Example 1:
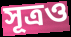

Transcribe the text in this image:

সূত্ৰও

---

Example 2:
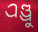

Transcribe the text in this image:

এণ্ড্ৰু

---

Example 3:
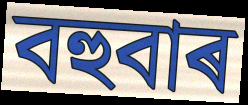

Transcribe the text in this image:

বহুবাৰ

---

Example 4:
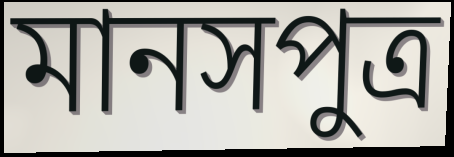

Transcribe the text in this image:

মানসপুত্ৰ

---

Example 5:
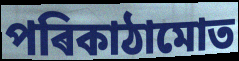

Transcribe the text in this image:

পৰিকাঠামোত